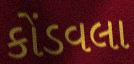
કોંડવલા